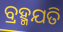
ବ୍ରହ୍ମଯତି